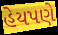
હેયપણે